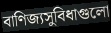
বাণিজ্যসুবিধাগুলো